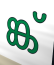
ങ്ക്